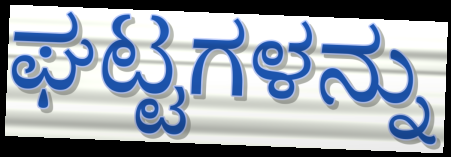
ಘಟ್ಟಗಳನ್ನು